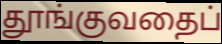
தூங்குவதைப்